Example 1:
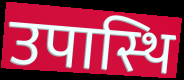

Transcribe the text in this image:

उपास्थि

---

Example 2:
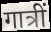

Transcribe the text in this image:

गात्रीं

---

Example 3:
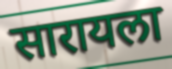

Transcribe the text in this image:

सारायला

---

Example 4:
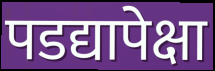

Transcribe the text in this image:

पडद्यापेक्षा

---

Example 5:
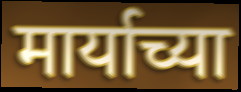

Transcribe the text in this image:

मार्याच्या